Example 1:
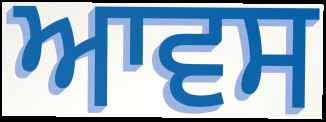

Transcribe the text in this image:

ਆਵਸ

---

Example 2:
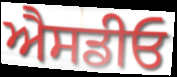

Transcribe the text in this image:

ਐਸਡੀਓ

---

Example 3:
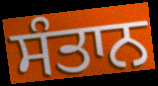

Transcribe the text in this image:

ਸੰਤਾਨ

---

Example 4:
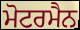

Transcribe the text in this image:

ਮੋਟਰਮੈਨ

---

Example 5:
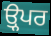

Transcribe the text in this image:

ਉ੍ਨਪਰ